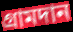
গ্রামদান